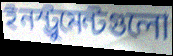
ইনস্ট্রুমেন্টগুলো